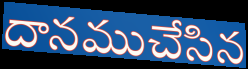
దానముచేసిన